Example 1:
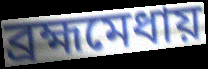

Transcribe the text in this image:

ব্রহ্মমেধায়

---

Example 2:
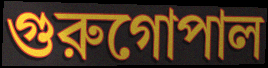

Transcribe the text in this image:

গুরুগোপাল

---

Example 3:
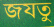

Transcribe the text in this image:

জযতু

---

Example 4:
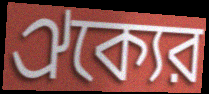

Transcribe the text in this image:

ঐক্যের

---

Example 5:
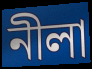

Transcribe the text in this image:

নীলা